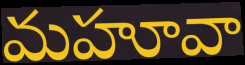
మహూవా